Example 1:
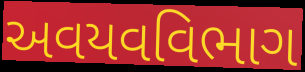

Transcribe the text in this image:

અવયવવિભાગ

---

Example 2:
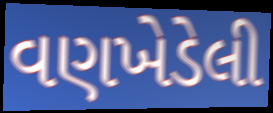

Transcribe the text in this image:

વણખેડેલી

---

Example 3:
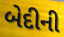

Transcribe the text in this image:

બેદીની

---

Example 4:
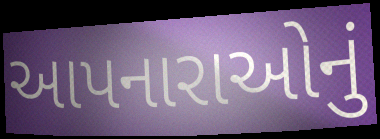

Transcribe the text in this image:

આપનારાઓનું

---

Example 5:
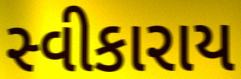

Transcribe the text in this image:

સ્વીકારાય